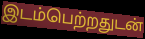
இடம்பெற்றதுடன்